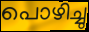
പൊഴിച്ചു